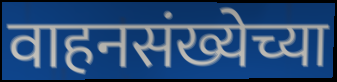
वाहनसंख्येच्या